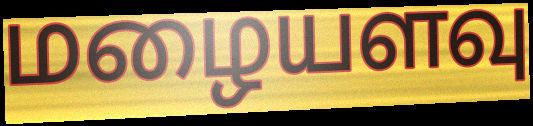
மழையளவு